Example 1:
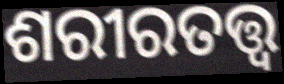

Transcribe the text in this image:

ଶରୀରତତ୍ତ୍ୱ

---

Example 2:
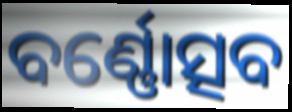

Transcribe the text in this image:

ବର୍ଣ୍ଣୋତ୍ସବ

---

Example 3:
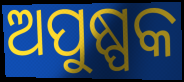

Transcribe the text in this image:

ଅପୁଷ୍ପକ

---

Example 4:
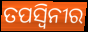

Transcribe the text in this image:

ତପସ୍ୱିନୀର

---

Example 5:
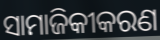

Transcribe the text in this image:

ସାମାଜିକୀକରଣ